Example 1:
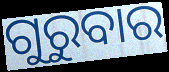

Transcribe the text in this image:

ଗୁରୁବାର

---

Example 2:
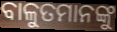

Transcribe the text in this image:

ବାଳୁତମାନଙ୍କୁ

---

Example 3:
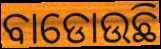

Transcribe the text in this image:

ବାଡୋଉଛି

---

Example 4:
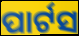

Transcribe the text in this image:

ପାର୍ଟସ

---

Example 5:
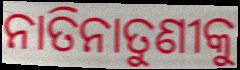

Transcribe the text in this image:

ନାତିନାତୁଣୀକୁ